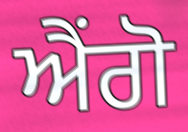
ਐਂਗੋ